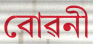
বোৱনী